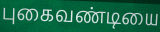
புகைவண்டியை